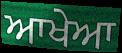
ਆਖੇਆ